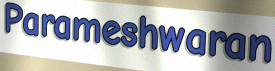
Parameshwaran